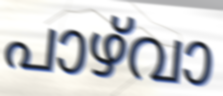
പാഴ്‌വാ